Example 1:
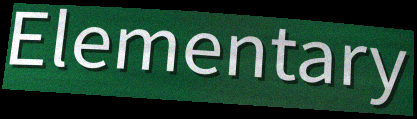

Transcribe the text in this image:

Elementary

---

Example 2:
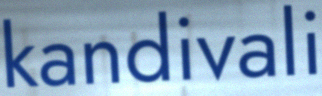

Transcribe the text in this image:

kandivali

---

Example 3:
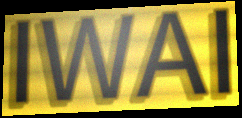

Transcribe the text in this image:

IWAI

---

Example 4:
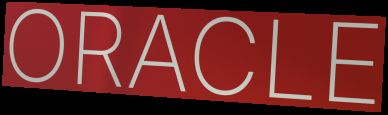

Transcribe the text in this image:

ORACLE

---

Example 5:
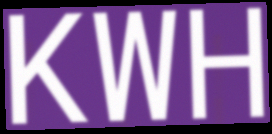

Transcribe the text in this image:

KWH